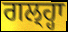
ਗਲ੍ਹ੍ਹਾ